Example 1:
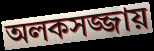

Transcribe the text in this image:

অলকসজ্জায়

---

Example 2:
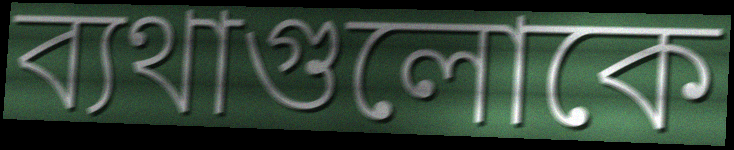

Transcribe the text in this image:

ব্যথাগুলোকে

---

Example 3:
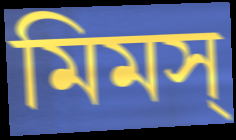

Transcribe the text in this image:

মিমস্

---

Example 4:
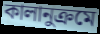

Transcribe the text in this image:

কালানুক্রমে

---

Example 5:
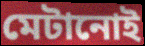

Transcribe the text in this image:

মেটানোই